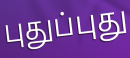
புதுப்புது